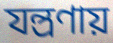
যন্ত্রণায়